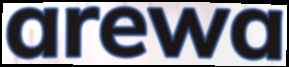
arewa